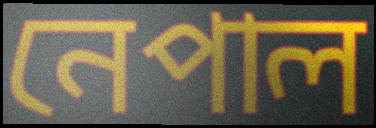
নেপাল